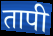
तापी